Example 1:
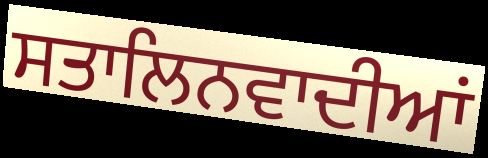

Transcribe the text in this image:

ਸਤਾਲਿਨਵਾਦੀਆਂ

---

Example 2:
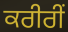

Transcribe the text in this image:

ਕਰੀਰੀਂ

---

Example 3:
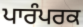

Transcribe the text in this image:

ਪਾਰੰਪਰਕ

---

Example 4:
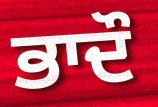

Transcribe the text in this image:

ਭਾਦੌ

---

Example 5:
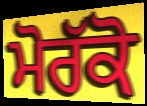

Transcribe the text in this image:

ਮੋਰੱਕੋ